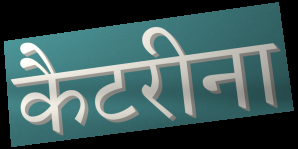
कैटरीना